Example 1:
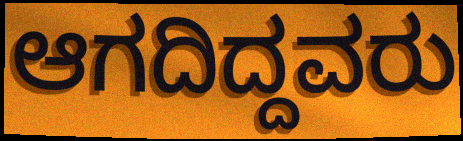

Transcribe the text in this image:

ಆಗದಿದ್ದವರು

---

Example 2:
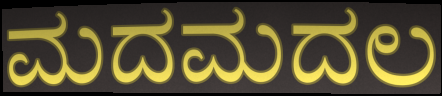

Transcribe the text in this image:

ಮದಮದಲ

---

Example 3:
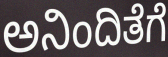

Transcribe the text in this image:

ಅನಿಂದಿತೆಗೆ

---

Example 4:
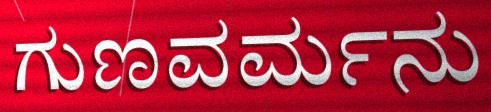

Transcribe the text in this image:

ಗುಣವರ್ಮನು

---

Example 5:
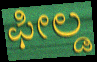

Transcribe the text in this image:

ಫೀಲ್ಡ